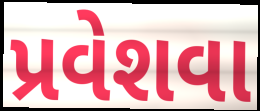
પ્રવેશવા